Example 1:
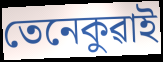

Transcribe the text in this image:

তেনেকুৱাই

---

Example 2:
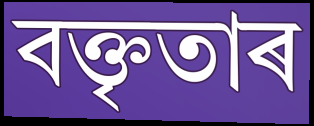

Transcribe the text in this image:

বক্তৃতাৰ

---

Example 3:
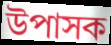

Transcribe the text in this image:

উপাসক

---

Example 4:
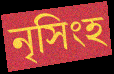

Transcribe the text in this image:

নৃসিংহ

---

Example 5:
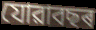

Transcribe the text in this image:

যোৱাবছৰ